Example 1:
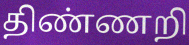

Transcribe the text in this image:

திண்ணறி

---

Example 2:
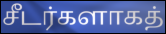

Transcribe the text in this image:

சீடர்களாகத்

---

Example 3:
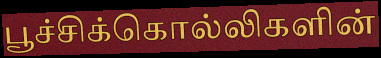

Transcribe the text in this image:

பூச்சிக்கொல்லிகளின்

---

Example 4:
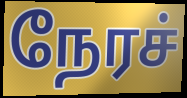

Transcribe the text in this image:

நேரச்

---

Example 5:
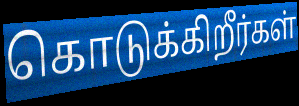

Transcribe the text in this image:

கொடுக்கிறீர்கள்